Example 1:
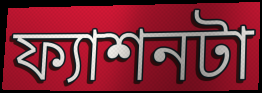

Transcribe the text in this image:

ফ্যাশনটা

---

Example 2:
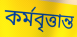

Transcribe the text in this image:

কর্মবৃত্তান্ত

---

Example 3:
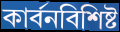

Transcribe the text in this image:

কার্বনবিশিষ্ট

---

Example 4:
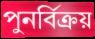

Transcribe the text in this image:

পুনর্বিক্রয়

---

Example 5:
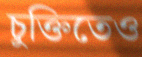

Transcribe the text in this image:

চুক্তিতেও